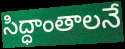
సిద్ధాంతాలనే